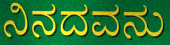
ನಿನದವನು